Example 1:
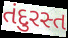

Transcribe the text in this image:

તંદુરસ્ત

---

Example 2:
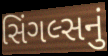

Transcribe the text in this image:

સિંગલ્સનું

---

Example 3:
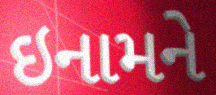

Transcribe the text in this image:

ઇનામને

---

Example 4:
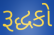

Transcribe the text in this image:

રૂદ્ધકો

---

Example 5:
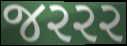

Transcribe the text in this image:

જરરર